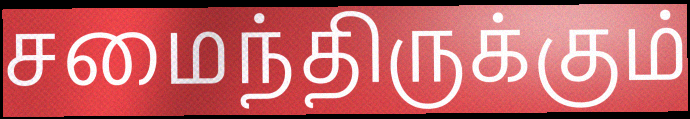
சமைந்திருக்கும்